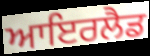
ਆਇਰਲੈਡ